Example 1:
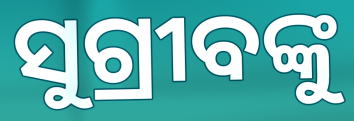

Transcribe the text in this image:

ସୁଗ୍ରୀବଙ୍କୁ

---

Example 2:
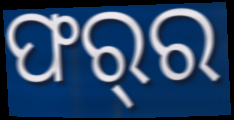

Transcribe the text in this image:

ଫର୍‌ର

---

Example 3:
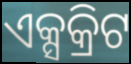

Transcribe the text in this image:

ଏକ୍ସକ୍ରିଟ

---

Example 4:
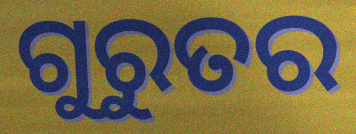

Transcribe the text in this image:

ଗୁରୁତର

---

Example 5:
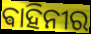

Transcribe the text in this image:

ଵାହିନୀର